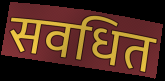
सवधित